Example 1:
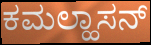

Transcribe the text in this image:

ಕಮಲ್ಹಾಸನ್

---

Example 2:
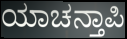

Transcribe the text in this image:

ಯಾಚನ್ತಾಪಿ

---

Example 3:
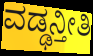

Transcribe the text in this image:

ವಡ್ಢನ್ತೀತಿ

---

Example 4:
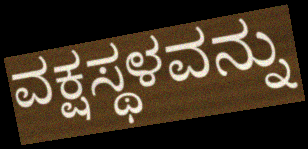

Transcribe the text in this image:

ವಕ್ಷಸ್ಥಳವನ್ನು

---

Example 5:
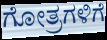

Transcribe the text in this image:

ಗೋತ್ರಗಳಿಗೆ